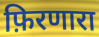
फ़िरणारा